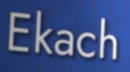
Ekach